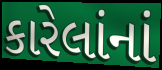
કારેલાંનાં